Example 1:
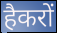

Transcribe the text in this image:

हैकरों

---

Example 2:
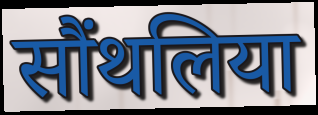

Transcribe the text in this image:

सौंथलिया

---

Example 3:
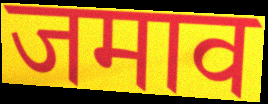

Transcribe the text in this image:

जमाव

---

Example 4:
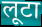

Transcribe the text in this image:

लूटा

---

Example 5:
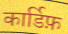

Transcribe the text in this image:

कार्डिफ़